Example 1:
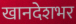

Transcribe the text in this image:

खानदेशभर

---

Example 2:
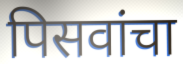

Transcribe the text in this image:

पिसवांचा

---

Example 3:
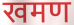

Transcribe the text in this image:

खमण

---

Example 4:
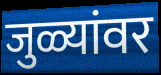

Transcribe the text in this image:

जुळ्यांवर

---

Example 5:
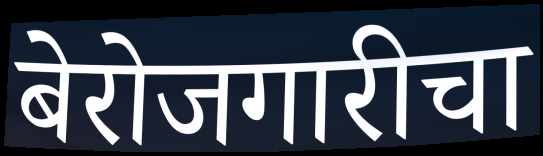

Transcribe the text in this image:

बेरोजगारीचा